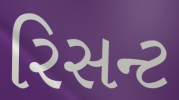
રિસન્ટ